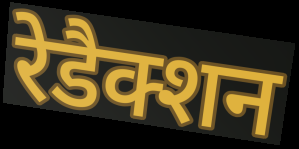
रेडैक्शन